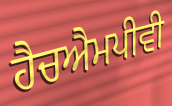
ਹੈਚਐਮਪੀਵੀ